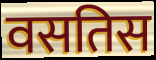
वसतिस